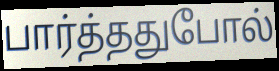
பார்த்ததுபோல்